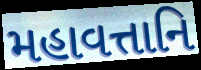
મહાવત્તાનિ